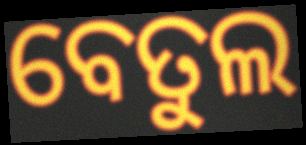
ବେତୁଲ